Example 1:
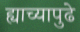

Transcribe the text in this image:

ह्याच्यापुढे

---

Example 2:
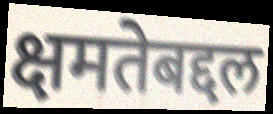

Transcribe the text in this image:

क्षमतेबद्दल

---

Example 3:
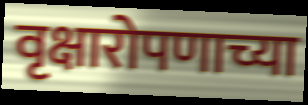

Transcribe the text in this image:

वृक्षारोपणाच्या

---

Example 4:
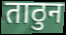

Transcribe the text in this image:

ताठुन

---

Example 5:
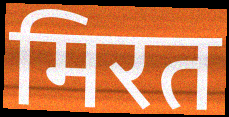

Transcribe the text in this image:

मिरत